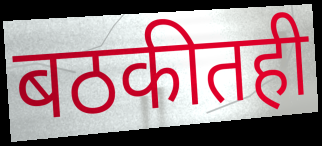
बठकीतही